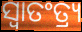
ସ୍ଵାତଂତ୍ର୍ୟ